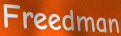
Freedman